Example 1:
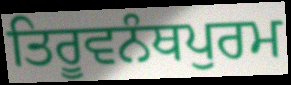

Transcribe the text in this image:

ਤਿਰੂਵਨੰਥਪੁਰਮ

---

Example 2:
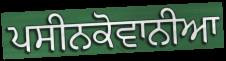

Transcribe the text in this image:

ਪਸੀਨਕੋਵਾਨੀਆ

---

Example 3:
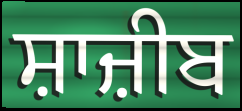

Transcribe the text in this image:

ਸ਼ਾਜ਼ੀਬ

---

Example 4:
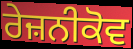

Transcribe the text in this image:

ਰੇਜ਼ਨੀਕੋਵ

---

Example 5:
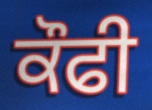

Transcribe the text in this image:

ਕੌਫੀ